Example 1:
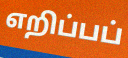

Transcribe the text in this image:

எறிப்பப்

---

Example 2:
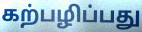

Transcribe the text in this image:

கற்பழிப்பது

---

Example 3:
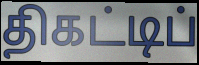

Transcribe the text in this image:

திகட்டிப்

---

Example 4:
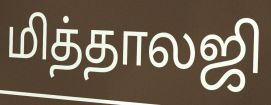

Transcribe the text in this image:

மித்தாலஜி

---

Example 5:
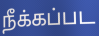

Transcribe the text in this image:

நீக்கப்பட